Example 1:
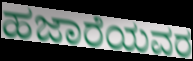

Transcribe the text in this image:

ಹಜಾರೆಯವರ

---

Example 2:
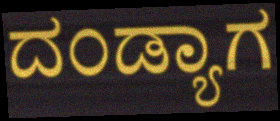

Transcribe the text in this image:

ದಂಡ್ಯಾಗ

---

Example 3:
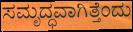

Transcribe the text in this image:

ಸಮೃದ್ಧವಾಗಿತ್ತೆಂದು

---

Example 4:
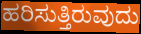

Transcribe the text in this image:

ಹರಿಸುತ್ತಿರುವುದು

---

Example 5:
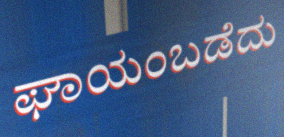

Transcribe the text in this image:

ಘಾಯಂಬಡೆದು